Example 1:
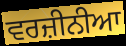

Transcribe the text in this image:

ਵਰਜ਼ੀਨੀਆ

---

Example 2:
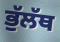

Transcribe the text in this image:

ਭੁੱਲੱਥ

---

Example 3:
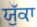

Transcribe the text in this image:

ਯੁੱਕਾ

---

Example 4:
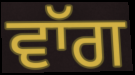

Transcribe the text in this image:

ਵਾੱਗ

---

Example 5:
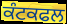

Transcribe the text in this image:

ਕੰਟਕਫਲ